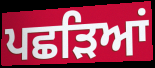
ਪਛੜਿਆਂ